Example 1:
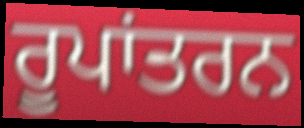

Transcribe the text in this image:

ਰੂਪਾਂਤਰਨ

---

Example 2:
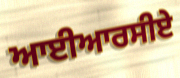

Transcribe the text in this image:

ਆਈਆਰਸੀਏ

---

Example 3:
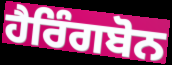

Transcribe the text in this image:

ਹੈਰਿੰਗਬੋਨ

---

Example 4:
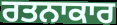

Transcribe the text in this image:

ਰਤਨਾਕਾਰ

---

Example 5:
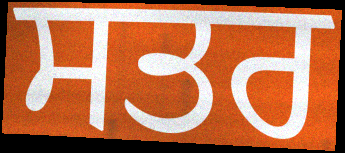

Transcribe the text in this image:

ਸਤਰ